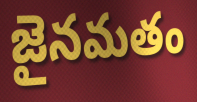
జైనమతం